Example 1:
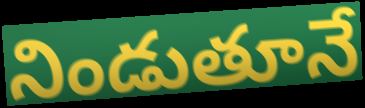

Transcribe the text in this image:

నిండుతూనే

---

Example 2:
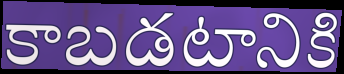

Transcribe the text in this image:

కాబడటానికి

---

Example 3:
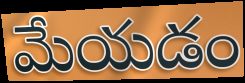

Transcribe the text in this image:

మేయడం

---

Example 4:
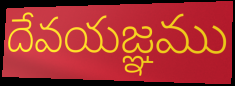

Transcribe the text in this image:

దేవయజ్ఞము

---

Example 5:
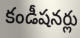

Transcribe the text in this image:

కండీషనర్లు